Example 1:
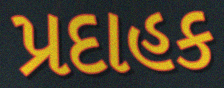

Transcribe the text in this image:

પ્રદાહક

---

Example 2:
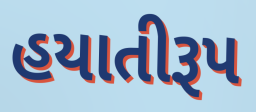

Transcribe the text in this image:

હયાતીરૂપ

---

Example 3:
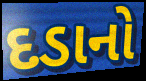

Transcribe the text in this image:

દડાનો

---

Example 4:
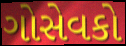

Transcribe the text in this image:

ગોસેવકો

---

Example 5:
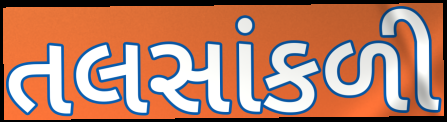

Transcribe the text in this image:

તલસાંકળી